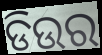
ଡିଉର